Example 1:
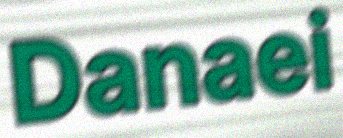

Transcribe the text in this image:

Danaei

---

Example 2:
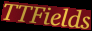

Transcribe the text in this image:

TTFields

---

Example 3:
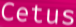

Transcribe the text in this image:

Cetus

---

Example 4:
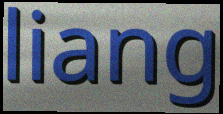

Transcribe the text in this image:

liang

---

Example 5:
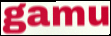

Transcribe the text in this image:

gamu